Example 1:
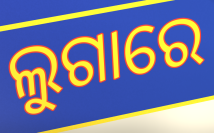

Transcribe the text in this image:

ଲୁଗାରେ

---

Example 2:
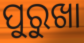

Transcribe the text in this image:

ପୁରୁଖା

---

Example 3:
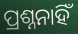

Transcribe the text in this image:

ପ୍ରଶ୍ନନାହିଁ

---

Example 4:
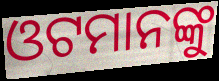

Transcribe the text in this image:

ଓଟମାନଙ୍କୁ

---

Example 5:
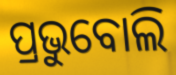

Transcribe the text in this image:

ପ୍ରଭୁବୋଲି